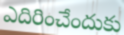
ఎదిరించేందుకు